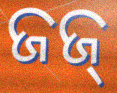
ଜଜ୍